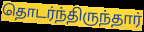
தொடர்ந்திருந்தார்